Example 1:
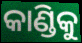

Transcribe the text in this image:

କାଣ୍ଡିକୁ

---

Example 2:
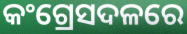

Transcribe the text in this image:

କଂଗ୍ରେସଦଳରେ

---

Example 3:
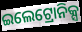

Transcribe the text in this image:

ଇଲେଟ୍ରୋନିକ୍ସ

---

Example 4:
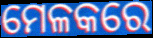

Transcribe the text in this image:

ମେଳକରେ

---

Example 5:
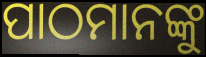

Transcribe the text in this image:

ପାଠମାନଙ୍କୁ